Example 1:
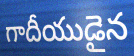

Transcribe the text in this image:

గాదీయుడైన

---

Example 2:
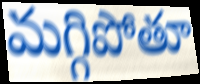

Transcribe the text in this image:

మగ్గిపోతూ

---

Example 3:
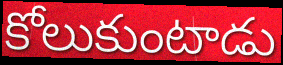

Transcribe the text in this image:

కోలుకుంటాడు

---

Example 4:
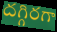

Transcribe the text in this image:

దగ్గిరగా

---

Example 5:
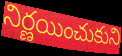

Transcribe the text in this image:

నిర్ణయించుకుని